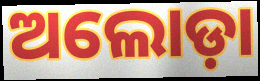
ଅଲୋଡ଼ା